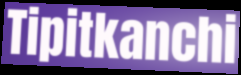
Tipitkanchi